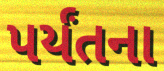
પર્યંતના